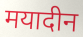
मयादीन